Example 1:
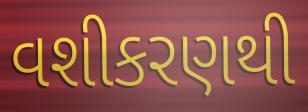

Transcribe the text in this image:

વશીકરણથી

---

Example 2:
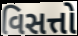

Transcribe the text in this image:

વિસત્તો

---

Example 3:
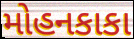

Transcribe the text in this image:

મોહનકાકા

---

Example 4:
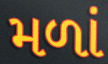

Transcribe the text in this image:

મળાં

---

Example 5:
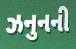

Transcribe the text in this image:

ઝનુનની